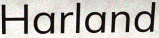
Harland